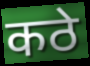
कठे